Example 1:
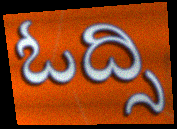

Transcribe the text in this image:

ಓದ್ಸಿ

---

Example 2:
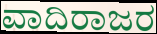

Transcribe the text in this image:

ವಾದಿರಾಜರ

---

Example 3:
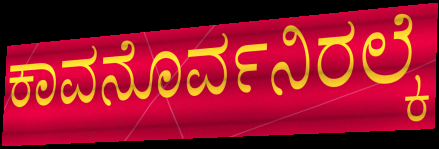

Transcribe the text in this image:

ಕಾವನೊರ್ವನಿರಲ್ಕೆ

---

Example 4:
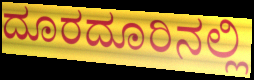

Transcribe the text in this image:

ದೂರದೂರಿನಲ್ಲಿ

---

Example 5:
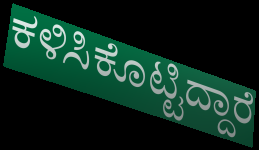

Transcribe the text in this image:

ಕಳಿಸಿಕೊಟ್ಟಿದ್ದಾರೆ